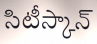
సిటీస్కాన్